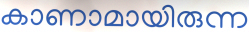
കാണാമായിരുന്ന